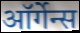
ऑर्गेन्स